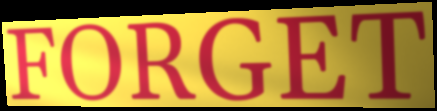
FORGET